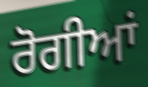
ਰੋਗੀਆਂ